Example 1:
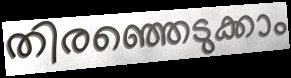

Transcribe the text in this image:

തിരഞ്ഞെടുക്കാം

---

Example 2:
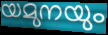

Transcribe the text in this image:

യമുനയും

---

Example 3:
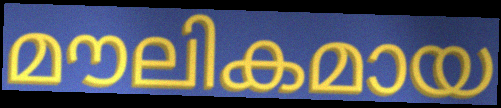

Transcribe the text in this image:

മൗലികമായ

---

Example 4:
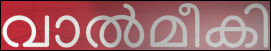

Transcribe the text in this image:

വാൽമീകി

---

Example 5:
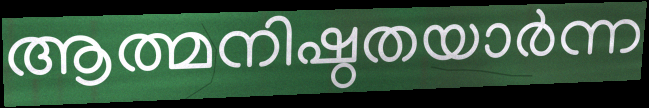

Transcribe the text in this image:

ആത്മനിഷ്ഠതയാർന്ന